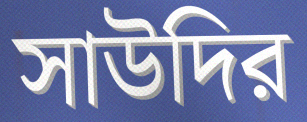
সাউদির